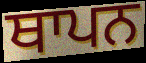
ਥਾਪਨ